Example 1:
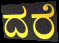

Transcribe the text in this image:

ದರೆ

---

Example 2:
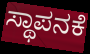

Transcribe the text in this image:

ಸ್ಥಾಪನಕೆ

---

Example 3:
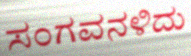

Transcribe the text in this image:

ಸಂಗವನಳಿದು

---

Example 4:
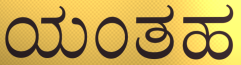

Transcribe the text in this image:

ಯಂತಹ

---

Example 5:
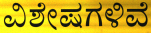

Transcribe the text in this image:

ವಿಶೇಷಗಳಿವೆ